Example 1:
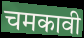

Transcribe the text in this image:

चमकावी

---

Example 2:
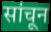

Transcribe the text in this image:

सांचून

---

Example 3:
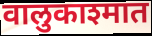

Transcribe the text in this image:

वालुकाश्मात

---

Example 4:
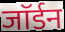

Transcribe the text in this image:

जॉर्डन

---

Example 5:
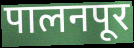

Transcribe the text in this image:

पालनपूर